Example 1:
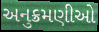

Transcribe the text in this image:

અનુક્રમણીઓ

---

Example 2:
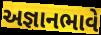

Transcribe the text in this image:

અજ્ઞાનભાવે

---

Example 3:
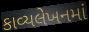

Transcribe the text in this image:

કાવ્યલેખનમાં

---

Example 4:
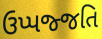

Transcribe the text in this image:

ઉપ્પજ્જતિ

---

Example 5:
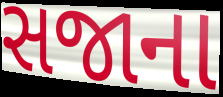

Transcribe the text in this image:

સજાના